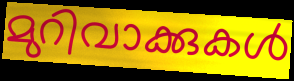
മുറിവാക്കുകൾ